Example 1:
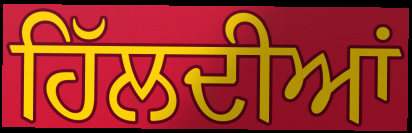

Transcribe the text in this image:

ਹਿੱਲਦੀਆਂ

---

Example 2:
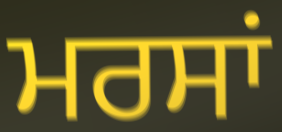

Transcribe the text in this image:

ਮਰਸਾਂ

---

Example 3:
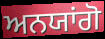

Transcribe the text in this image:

ਅਨਯਾਂਗੋ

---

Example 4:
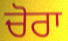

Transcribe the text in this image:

ਚੋਰਾ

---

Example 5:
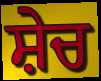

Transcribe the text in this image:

ਸ਼ੇਚ